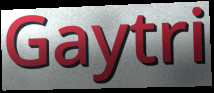
Gaytri